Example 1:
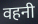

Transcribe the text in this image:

वहनी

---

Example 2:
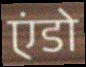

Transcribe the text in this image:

एंडो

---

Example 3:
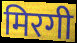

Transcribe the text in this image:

मिरगी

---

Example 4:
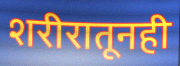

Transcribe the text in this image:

शरीरातूनही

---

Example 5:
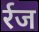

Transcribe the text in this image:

र्रज